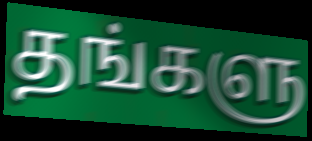
தங்களு